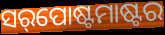
ସର୍‌ପୋଷ୍ଟମାଷ୍ଟର